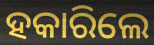
ହକାରିଲେ